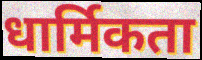
धार्मिकता